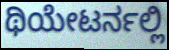
ಥಿಯೇಟರ್ನಲ್ಲಿ